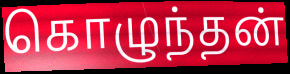
கொழுந்தன்